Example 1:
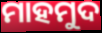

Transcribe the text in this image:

ମାହମୁଦ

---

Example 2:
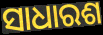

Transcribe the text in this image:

ସାଧାରଶ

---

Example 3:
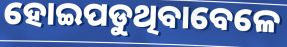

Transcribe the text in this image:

ହୋଇପଡୁଥିବାବେଳେ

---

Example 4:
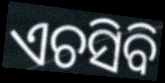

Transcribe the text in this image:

ଏଚସିବି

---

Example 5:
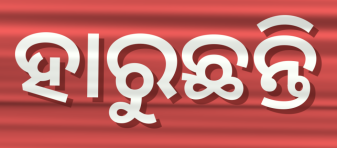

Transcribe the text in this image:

ହାରୁଛନ୍ତି